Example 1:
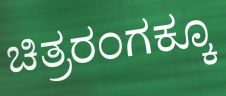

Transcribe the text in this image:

ಚಿತ್ರರಂಗಕ್ಕೂ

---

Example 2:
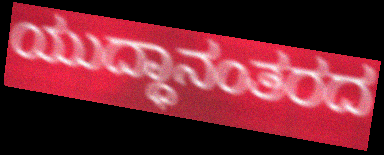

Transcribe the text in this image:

ಯುದ್ಧಾನಂತರದ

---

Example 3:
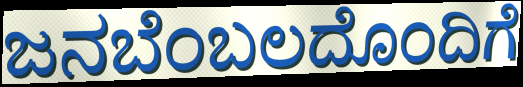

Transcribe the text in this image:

ಜನಬೆಂಬಲದೊಂದಿಗೆ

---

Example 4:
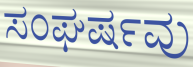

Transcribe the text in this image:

ಸಂಘರ್ಷವು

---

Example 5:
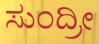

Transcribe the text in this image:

ಸುಂದ್ರೀ